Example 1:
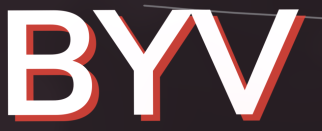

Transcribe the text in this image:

BYV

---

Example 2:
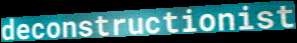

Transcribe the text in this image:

deconstructionist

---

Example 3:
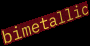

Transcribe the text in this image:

bimetallic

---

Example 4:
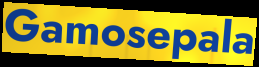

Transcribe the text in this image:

Gamosepala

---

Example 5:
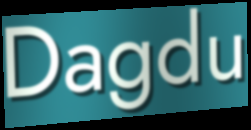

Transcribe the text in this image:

Dagdu